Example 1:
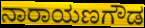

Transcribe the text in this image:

ನಾರಾಯಣಗೌಡ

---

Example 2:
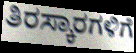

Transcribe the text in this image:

ತಿರಸ್ಕಾರಗಳಿಗೆ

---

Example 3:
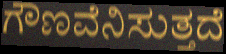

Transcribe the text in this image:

ಗೌಣವೆನಿಸುತ್ತದೆ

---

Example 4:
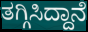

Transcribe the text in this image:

ತಗ್ಗಿಸಿದ್ದಾನೆ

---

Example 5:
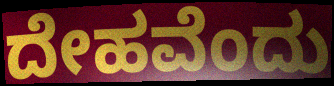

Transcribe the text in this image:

ದೇಹವೆಂದು